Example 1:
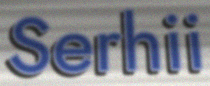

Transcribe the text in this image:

Serhii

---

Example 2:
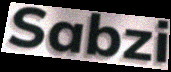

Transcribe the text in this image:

Sabzi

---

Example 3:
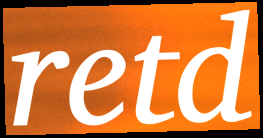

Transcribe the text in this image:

retd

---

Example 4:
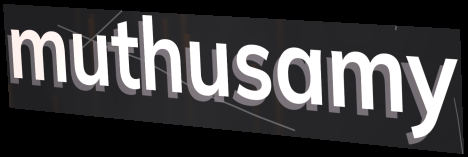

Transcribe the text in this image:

muthusamy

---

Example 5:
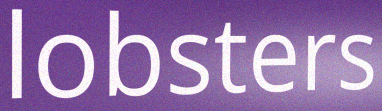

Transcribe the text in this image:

lobsters